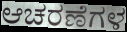
ಆಚರಣೆಗಳ